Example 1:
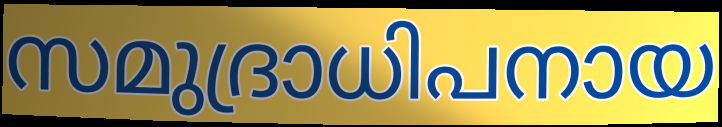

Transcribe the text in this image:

സമുദ്രാധിപനായ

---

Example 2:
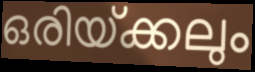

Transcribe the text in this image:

ഒരിയ്‌ക്കലും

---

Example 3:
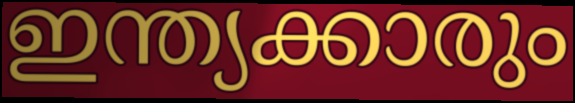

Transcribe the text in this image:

ഇന്ത്യക്കാരും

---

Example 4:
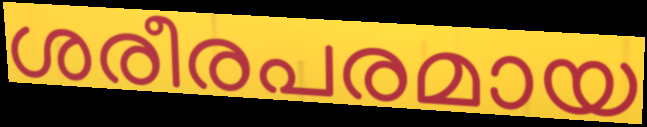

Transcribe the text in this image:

ശരീരപരമായ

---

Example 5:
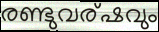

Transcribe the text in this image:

രണ്ടുവര്ഷവും